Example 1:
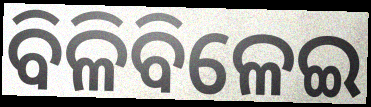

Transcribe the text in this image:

ବିଳିବିଳେଇ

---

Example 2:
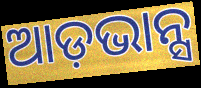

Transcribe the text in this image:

ଆଡ଼ଭାନ୍ସ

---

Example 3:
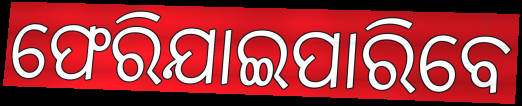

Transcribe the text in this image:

ଫେରିଯାଇପାରିବେ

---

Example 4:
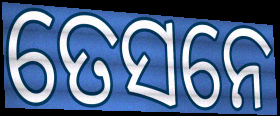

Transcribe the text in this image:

ତେସନେ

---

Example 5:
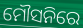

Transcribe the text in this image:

ମୌସନିରେ